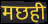
मछही